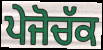
ਪੇਜੋਚੱਕ